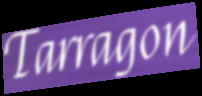
Tarragon